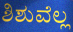
ಶಿಶುವೆಲ್ಲ